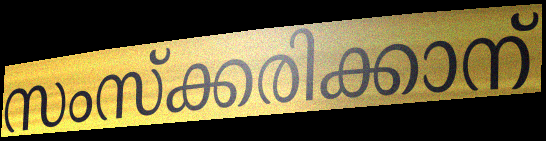
സംസ്ക്കരിക്കാന്